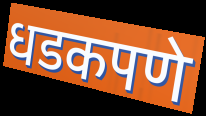
धडकपणे